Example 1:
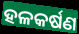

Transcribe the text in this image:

ହଳକର୍ଷଣ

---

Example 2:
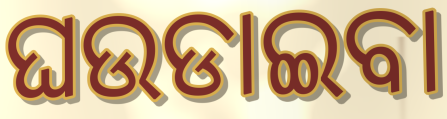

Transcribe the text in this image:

ଘଉଡାଇବା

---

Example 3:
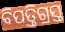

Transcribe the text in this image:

ବିପତ୍ତିଗ୍ରସ୍ତ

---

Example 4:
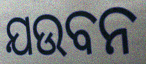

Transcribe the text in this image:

ଯଉବନ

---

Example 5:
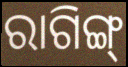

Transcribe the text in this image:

ରାଗିଙ୍ଗ୍